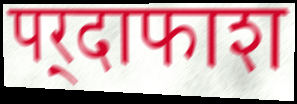
पर्दाफाश